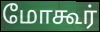
மோகூர்